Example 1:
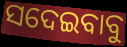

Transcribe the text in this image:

ସଦେଇବାବୁ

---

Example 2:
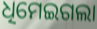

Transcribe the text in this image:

ଧିମେଇଗଲା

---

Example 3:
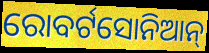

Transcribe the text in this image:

ରୋବର୍ଟସୋନିଆନ୍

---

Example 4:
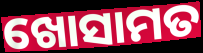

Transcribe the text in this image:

ଖୋସାମତ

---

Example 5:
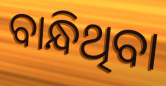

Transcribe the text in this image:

ବାନ୍ଧିଥିବା